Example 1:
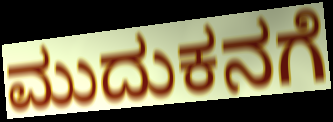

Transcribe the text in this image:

ಮುದುಕನಗೆ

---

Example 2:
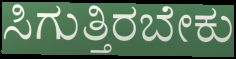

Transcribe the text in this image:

ಸಿಗುತ್ತಿರಬೇಕು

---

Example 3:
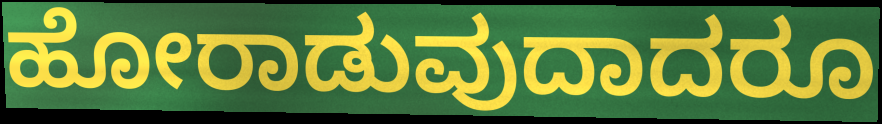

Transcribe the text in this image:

ಹೋರಾಡುವುದಾದರೂ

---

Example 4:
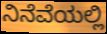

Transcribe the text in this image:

ನಿನೆವೆಯಲ್ಲಿ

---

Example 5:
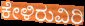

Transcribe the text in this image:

ಕೇಳಿರುವಿರಿ